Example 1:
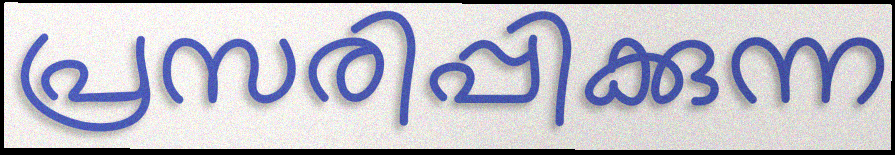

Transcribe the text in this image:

പ്രസരിപ്പിക്കുന്ന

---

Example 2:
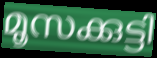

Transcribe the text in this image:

മൂസക്കുട്ടി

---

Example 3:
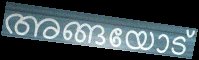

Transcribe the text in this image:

അങ്ങയോട്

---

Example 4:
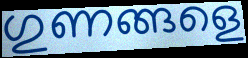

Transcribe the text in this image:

ഗുണങ്ങളെ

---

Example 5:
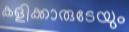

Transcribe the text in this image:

കളിക്കാരുടേയും